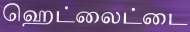
ஹெட்லைட்டை